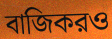
বাজিকরও